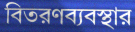
বিতরণব্যবস্থার